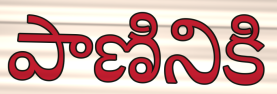
పాణినికి